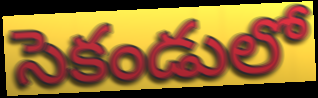
సెకండులో